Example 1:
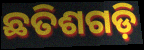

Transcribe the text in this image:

ଛତିଶଗଡ଼ି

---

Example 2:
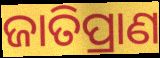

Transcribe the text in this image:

ଜାତିପ୍ରାଣ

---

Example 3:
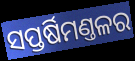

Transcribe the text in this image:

ସପ୍ତର୍ଷିମଣ୍ତଳର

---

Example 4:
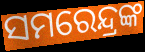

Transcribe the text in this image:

ସମରେନ୍ଦ୍ରଙ୍କ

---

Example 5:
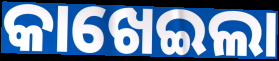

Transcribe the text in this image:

କାଖେଇଲା